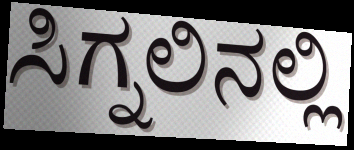
ಸಿಗ್ನಲಿನಲ್ಲಿ